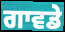
ਗਾਵਡੇ